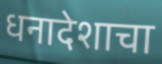
धनादेशाचा